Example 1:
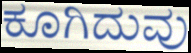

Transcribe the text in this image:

ಕೂಗಿದುವು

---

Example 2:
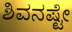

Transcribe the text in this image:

ಶಿವನಷ್ಟೇ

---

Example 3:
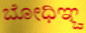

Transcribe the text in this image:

ಬೋಧಿಞ್ಚ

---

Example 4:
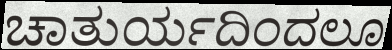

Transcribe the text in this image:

ಚಾತುರ್ಯದಿಂದಲೂ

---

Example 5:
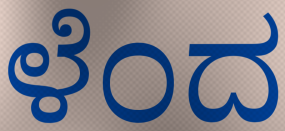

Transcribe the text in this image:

ಳೆಂದ